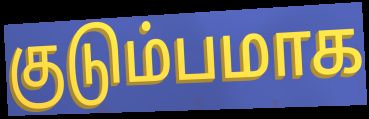
குடும்பமாக